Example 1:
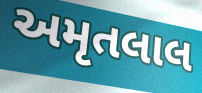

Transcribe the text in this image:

અમૃતલાલ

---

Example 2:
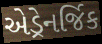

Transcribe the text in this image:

એડ્રેનર્જિક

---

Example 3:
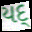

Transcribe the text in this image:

યદ્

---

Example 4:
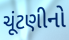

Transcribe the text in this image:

ચૂંટણીનો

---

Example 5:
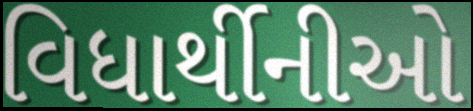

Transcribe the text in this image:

વિધાર્થીનીઓ